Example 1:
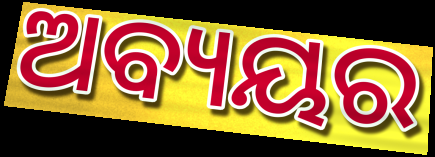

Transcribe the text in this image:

ଅବ୍ୟୟର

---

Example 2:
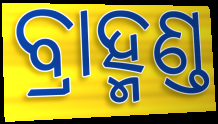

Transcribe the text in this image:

ବ୍ରାହ୍ମଣ୍ଡ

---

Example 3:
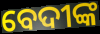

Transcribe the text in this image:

ବେଦୀଙ୍କ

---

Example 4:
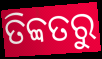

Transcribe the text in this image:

ତିବ୍ବତରୁ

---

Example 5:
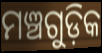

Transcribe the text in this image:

ମଞ୍ଚଗୁଡ଼ିକ